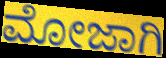
ಮೋಜಾಗಿ